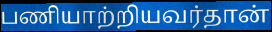
பணியாற்றியவர்தான்